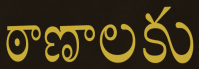
ఠాణాలకు